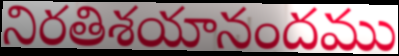
నిరతిశయానందము